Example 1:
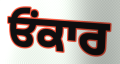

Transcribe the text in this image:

ਓਂਕਾਰ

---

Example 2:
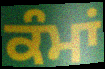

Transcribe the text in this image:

ਕੰਮਾਂ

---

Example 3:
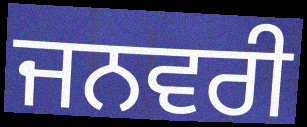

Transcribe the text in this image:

ਜਨਵਰੀ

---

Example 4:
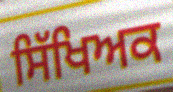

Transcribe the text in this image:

ਸਿੱਖਿਅਕ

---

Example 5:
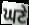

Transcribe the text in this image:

ਘਣੇ